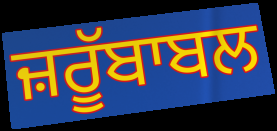
ਜ਼ਰੂੱਬਾਬਲ